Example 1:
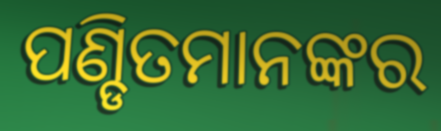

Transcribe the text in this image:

ପଣ୍ଡିତମାନଙ୍କର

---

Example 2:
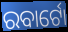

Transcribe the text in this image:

ରବାର୍ଟୋ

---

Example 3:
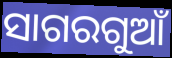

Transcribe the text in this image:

ସାଗରଗୁଆଁ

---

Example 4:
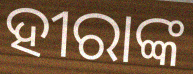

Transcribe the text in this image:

ହୀରାଙ୍କ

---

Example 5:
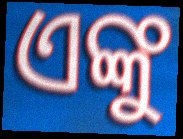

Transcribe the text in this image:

ଏଙ୍କୁ